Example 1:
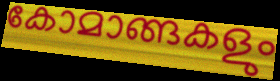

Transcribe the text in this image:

കോമാങ്ങകളും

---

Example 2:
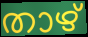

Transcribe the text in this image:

താഴ്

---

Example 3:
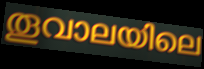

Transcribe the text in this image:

തൂവാലയിലെ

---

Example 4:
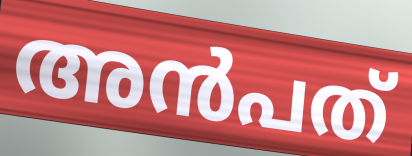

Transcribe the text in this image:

അൻപത്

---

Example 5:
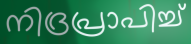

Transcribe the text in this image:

നിദ്രപ്രാപിച്ച്